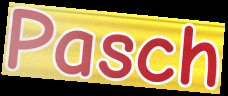
Pasch